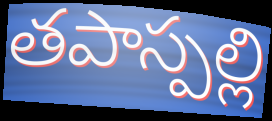
తపాస్పల్లి